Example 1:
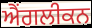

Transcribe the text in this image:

ਐਂਗਲੀਕਨ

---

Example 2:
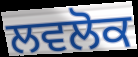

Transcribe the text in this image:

ਲਵਲੋਕ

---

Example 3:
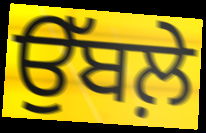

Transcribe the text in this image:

ਉੱਬਲ਼ੇ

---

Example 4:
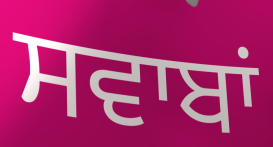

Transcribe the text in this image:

ਸਵਾਬਾਂ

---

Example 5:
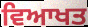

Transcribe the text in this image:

ਵਿਆਖਤ